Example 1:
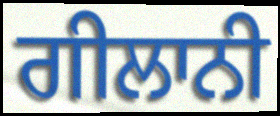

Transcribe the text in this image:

ਗੀਲਾਨੀ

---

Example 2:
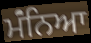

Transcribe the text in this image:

ਮੰਂਨਿਆ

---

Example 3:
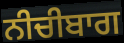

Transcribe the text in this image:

ਨੀਚੀਬਾਗ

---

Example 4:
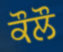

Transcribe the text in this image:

ਕੌਲੌ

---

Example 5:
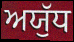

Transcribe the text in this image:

ਅਯੁੱਧ